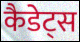
कैडेट्स